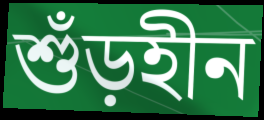
শুঁড়হীন